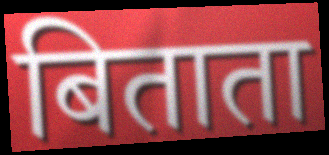
बिताता